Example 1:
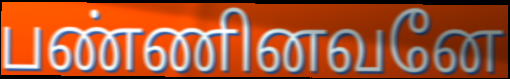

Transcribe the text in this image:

பண்ணினவனே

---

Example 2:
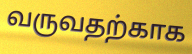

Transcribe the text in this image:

வருவதற்காக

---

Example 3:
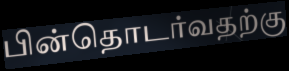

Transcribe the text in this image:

பின்தொடர்வதற்கு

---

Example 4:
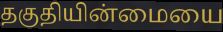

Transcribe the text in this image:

தகுதியின்மையை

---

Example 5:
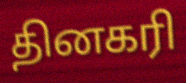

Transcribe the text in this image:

தினகரி